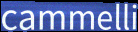
cammelli